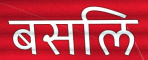
बसलि